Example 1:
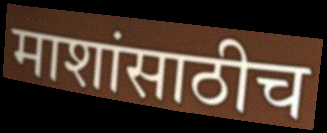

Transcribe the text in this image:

माशांसाठीच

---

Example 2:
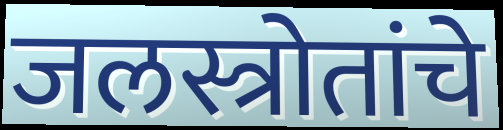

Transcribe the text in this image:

जलस्त्रोतांचे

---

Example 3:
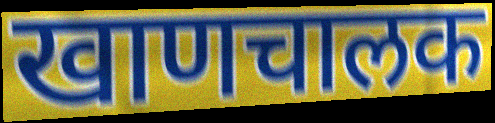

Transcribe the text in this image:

खाणचालक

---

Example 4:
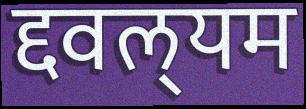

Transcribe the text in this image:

द्दवल्यम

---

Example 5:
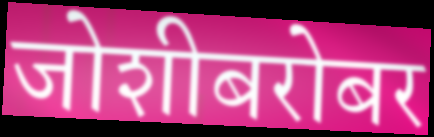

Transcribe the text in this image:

जोशीबरोबर